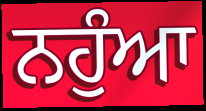
ਨਹੁੰਆ